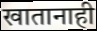
खातानाही